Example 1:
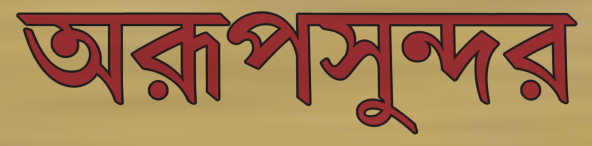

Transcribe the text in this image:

অরূপসুন্দর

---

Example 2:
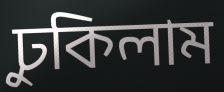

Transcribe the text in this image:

ঢুকিলাম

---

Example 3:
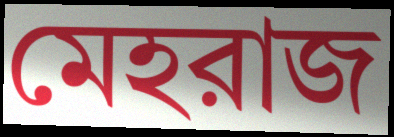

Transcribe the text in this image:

মেহরাজ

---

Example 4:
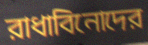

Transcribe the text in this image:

রাধাবিনোদের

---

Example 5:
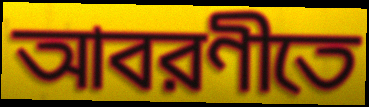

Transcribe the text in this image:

আবরণীতে